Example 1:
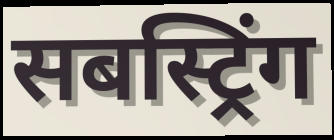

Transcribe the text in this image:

सबस्ट्रिंग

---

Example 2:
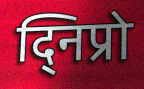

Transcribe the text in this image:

द्निप्रो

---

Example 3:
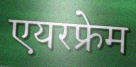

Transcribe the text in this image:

एयरफ्रेम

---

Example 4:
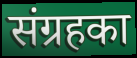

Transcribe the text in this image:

संग्रहका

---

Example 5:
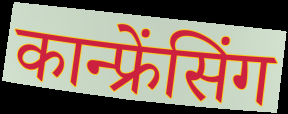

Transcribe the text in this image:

कान्फ्रेंसिंग